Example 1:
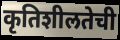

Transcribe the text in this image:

कृतिशीलतेची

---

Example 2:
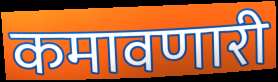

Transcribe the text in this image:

कमावणारी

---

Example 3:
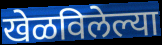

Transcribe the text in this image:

खेळविलेल्या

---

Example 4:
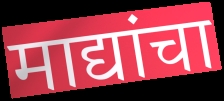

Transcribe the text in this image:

माद्यांचा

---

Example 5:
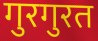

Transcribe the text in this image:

गुरगुरत